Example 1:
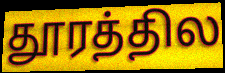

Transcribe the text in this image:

தூரத்தில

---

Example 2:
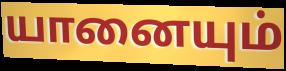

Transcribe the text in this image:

யானையும்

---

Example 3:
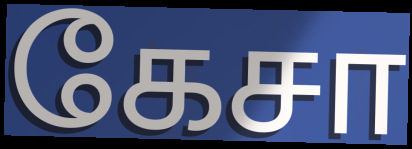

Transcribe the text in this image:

கேசா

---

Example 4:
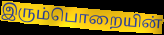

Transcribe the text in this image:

இரும்பொறையின்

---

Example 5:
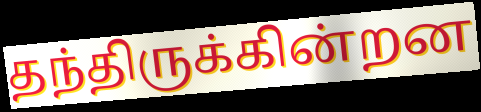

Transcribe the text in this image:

தந்திருக்கின்றன